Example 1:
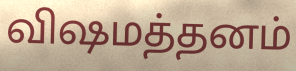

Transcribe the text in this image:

விஷமத்தனம்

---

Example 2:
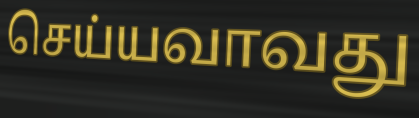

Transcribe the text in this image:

செய்யவாவது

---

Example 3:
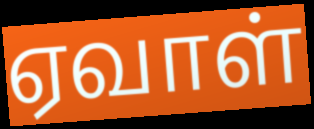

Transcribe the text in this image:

ஏவாள்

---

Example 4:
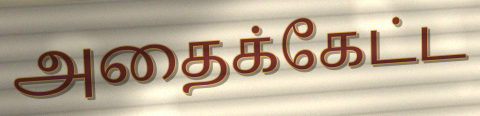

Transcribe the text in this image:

அதைக்கேட்ட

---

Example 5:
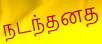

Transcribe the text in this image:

நடந்தனத